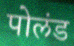
पोलंड